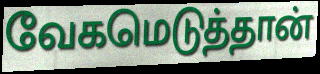
வேகமெடுத்தான்